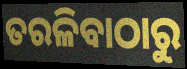
ତରଳିବାଠାରୁ